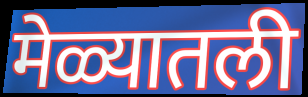
मेळ्यातली